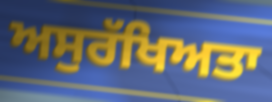
ਅਸੁਰੱਖਿਅਤਾ